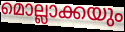
മൊല്ലാക്കയും